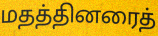
மதத்தினரைத்